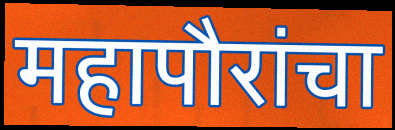
महापौरांचा